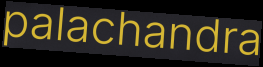
palachandra